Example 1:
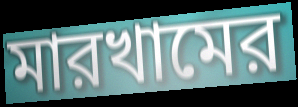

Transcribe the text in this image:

মারখামের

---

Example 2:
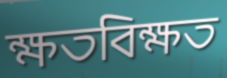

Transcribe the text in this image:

ক্ষতবিক্ষত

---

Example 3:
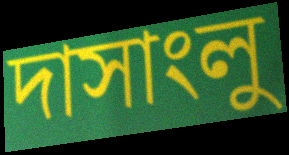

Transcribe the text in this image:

দাসাংলু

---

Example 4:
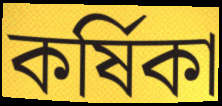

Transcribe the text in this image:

কর্ষিকা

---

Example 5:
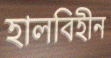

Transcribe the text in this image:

হালবিহীন